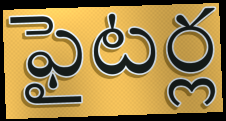
ఫైటర్ల